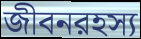
জীবনরহস্য